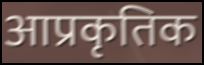
आप्रकृतिक